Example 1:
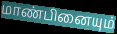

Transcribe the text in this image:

மாண்பினையும்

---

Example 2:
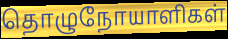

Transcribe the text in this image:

தொழுநோயாளிகள்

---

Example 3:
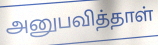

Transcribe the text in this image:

அனுபவித்தாள்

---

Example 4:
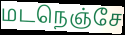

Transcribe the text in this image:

மடநெஞ்சே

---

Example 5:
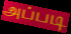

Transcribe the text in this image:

அப்படி